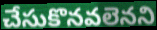
చేసుకొనవలెనని